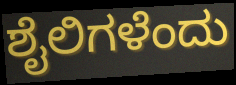
ಶೈಲಿಗಳೆಂದು